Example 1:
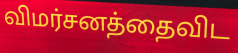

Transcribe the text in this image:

விமர்சனத்தைவிட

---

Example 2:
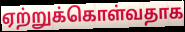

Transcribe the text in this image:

ஏற்றுக்கொள்வதாக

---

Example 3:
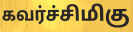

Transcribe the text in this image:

கவர்ச்சிமிகு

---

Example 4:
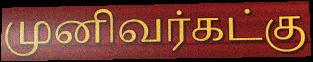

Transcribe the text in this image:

முனிவர்கட்கு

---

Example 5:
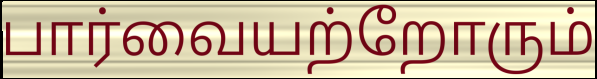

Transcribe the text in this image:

பார்வையற்றோரும்